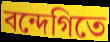
বন্দেগিতে